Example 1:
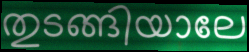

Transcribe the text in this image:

തുടങ്ങിയാലേ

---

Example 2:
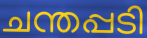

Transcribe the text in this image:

ചന്തപ്പടി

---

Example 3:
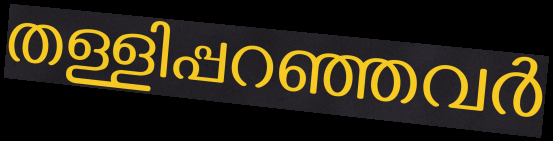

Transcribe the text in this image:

തള്ളിപ്പറഞ്ഞവർ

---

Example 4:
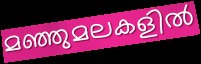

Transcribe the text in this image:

മഞ്ഞുമലകളിൽ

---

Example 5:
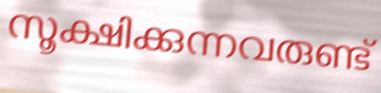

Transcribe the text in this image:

സൂക്ഷിക്കുന്നവരുണ്ട്